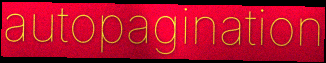
autopagination